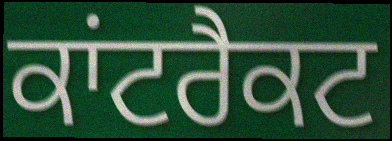
ਕਾਂਟਰੈਕਟ